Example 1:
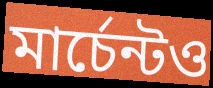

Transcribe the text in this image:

মার্চেন্টও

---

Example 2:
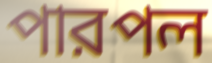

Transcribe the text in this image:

পারপল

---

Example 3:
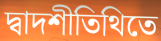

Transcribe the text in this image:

দ্বাদশীতিথিতে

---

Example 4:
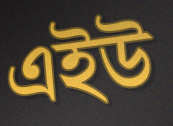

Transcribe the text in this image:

এইউ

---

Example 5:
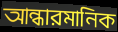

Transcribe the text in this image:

আন্ধারমানিক